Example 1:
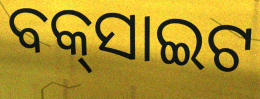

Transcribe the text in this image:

ବକ୍‌ସାଇଟ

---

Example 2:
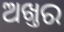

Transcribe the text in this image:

ଅଖ୍ତର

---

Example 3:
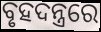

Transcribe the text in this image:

ବୃହଦନ୍ତ୍ରରେ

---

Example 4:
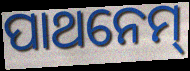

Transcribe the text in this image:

ପାଥନେମ୍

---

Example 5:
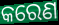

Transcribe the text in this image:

କରେଣ